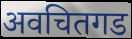
अवचितगड